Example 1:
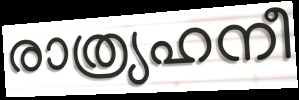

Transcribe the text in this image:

രാത്ര്യഹനീ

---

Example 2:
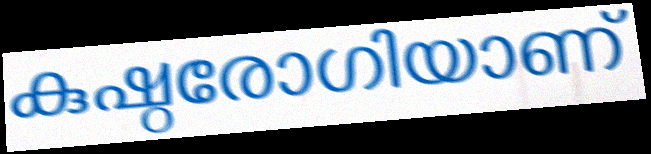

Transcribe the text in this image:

കുഷ്ഠരോഗിയാണ്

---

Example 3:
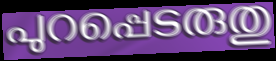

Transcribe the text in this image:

പുറപ്പെടരുതു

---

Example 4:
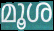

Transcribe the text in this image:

മൂശ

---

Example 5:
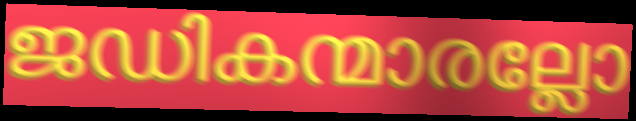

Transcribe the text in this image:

ജഡികന്മാരല്ലോ